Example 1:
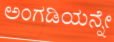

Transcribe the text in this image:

ಅಂಗಡಿಯನ್ನೇ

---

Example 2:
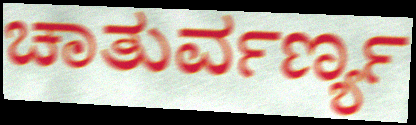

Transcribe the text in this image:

ಚಾತುರ್ವರ್ಣ್ಯ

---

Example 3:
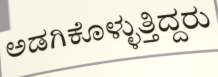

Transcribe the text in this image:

ಅಡಗಿಕೊಳ್ಳುತ್ತಿದ್ದರು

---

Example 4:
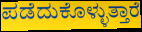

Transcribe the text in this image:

ಪಡೆದುಕೊಳ್ಳುತ್ತಾರೆ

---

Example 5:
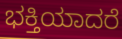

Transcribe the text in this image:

ಭಕ್ತಿಯಾದರೆ